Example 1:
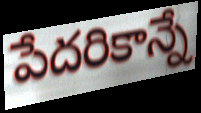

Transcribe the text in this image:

పేదరికాన్నే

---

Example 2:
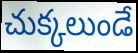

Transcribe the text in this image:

చుక్కలుండే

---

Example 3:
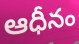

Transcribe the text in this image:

ఆధీనం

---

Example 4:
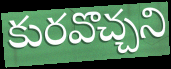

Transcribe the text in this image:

కురవొచ్చని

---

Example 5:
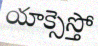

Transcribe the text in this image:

యాక్సెస్తో